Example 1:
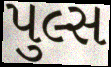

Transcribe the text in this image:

પુલ્સ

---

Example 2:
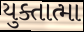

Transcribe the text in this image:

યુક્તાત્મા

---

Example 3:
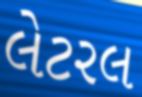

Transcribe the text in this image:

લેટરલ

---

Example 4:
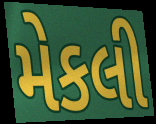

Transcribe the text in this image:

મેકલી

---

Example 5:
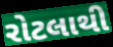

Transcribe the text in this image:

રોટલાથી